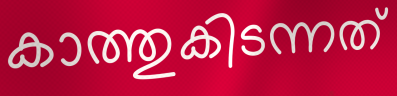
കാത്തുകിടന്നത്